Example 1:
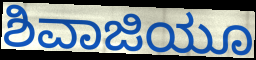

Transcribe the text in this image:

ಶಿವಾಜಿಯೂ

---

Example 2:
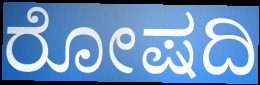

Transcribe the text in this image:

ರೋಷದಿ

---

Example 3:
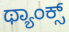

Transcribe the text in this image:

ಥ್ಯಾಂಕ್ಸ್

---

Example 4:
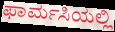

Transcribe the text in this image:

ಫಾರ್ಮಸಿಯಲ್ಲಿ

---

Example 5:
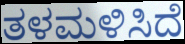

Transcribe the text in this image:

ತಳಮಳಿಸಿದೆ